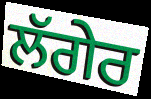
ਲੱਗੇਰ